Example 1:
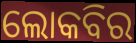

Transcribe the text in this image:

ଲୋକବିର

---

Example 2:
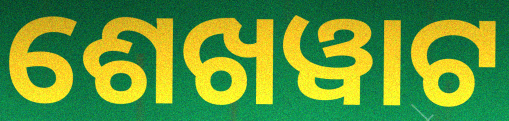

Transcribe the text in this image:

ଶେଖୱାଟ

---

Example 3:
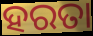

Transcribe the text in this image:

ହରତା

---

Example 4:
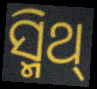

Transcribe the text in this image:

ସ୍ମିଥ୍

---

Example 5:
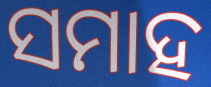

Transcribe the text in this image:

ସମାହ